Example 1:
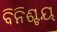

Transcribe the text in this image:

ବିନିଶ୍ଚୟ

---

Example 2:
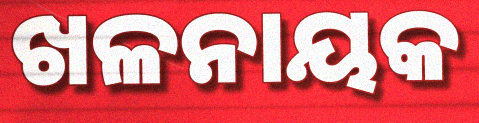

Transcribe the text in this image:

ଖଳନାୟକ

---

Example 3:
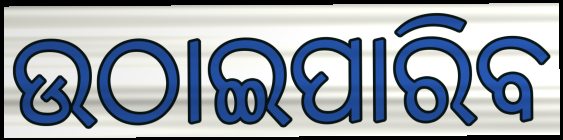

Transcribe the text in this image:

ଉଠାଇପାରିବ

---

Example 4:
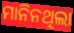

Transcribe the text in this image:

ମାନିନଥିଲା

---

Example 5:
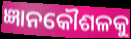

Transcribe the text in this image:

ଜ୍ଞାନକୌଶଳକୁ